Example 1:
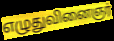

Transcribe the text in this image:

எழுதுவினைஞர்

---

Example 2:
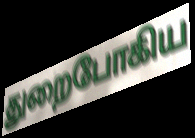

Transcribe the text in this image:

துறைபோகிய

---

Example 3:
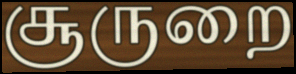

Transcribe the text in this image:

சூருறை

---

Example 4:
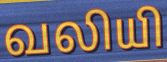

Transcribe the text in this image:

வலியி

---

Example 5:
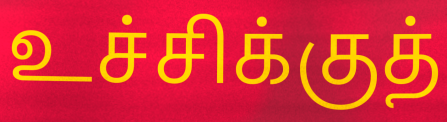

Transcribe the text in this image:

உச்சிக்குத்